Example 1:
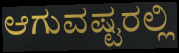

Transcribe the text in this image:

ಆಗುವಷ್ಟರಲ್ಲಿ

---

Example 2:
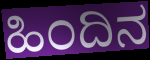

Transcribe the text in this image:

ಹಿಂದಿನ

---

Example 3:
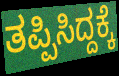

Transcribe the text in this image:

ತಪ್ಪಿಸಿದ್ದಕ್ಕೆ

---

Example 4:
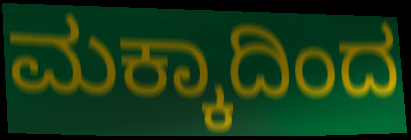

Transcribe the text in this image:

ಮಕ್ಕಾದಿಂದ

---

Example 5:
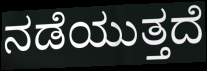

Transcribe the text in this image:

ನಡೆಯುತ್ತದೆ